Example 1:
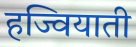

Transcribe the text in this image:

हज्वियाती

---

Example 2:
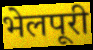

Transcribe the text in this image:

भेलपूरी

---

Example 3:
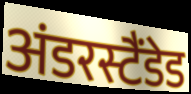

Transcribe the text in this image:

अंडरस्टैंडेड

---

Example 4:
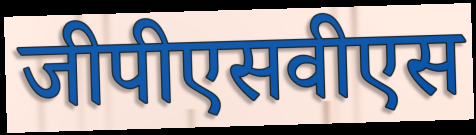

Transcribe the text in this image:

जीपीएसवीएस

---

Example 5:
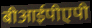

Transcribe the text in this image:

बीआईपीएपी